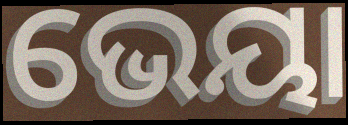
ଭେୟା